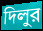
দিলুর